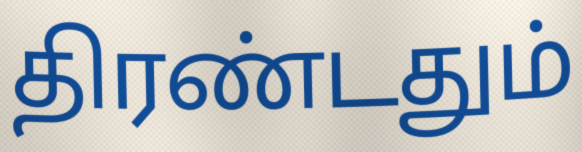
திரண்டதும்